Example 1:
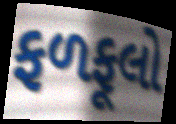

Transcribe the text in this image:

ફળફૂલો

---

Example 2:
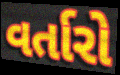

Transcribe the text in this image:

વર્તારો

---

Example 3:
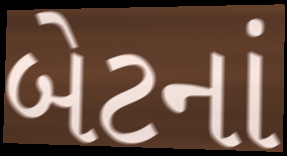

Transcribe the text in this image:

બેટનાં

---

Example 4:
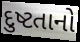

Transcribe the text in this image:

દુષ્ટતાનો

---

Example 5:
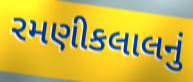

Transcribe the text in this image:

રમણીકલાલનું